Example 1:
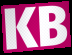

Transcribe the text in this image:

KB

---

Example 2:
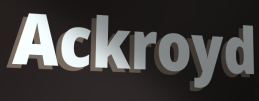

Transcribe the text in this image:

Ackroyd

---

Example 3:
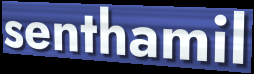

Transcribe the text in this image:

senthamil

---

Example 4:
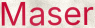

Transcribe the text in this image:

Maser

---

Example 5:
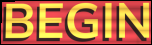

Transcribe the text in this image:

BEGIN